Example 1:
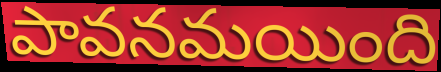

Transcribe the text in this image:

పావనమయింది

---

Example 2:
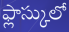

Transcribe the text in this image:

ఫ్లాస్కులో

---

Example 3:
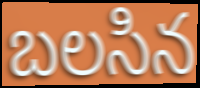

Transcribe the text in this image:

బలసిన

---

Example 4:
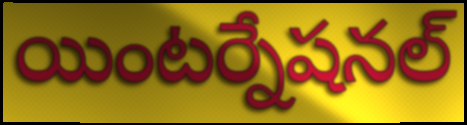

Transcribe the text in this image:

యింటర్నేషనల్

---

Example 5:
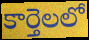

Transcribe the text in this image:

కార్తెలలో